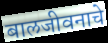
बालजीवनाचे